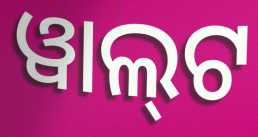
ୱାଲ୍‌ଟ